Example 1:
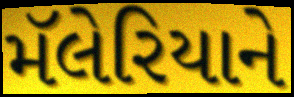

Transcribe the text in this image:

મૅલેરિયાને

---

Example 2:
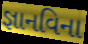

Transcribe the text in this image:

જ્ઞાનવિના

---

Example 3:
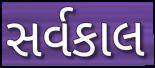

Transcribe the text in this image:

સર્વકાલ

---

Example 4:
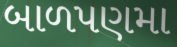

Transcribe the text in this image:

બાળપણમા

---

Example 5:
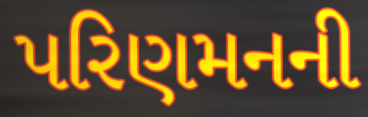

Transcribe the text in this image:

પરિણમનની